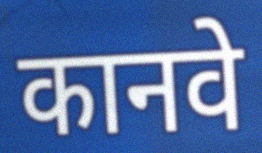
कानवे